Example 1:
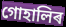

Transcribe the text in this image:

গোহালিৰ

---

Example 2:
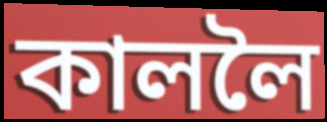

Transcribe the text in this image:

কাললৈ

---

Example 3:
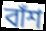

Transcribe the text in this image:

বাঁশ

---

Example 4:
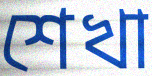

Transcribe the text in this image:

শেখা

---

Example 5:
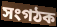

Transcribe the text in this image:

সংগঠক